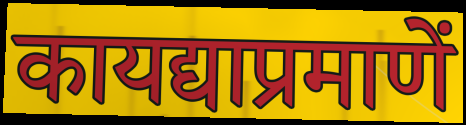
कायद्याप्रमाणें